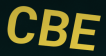
CBE